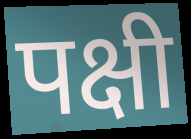
पक्षी